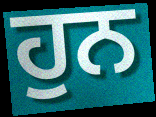
ਹੁਨ